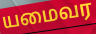
யமைவர